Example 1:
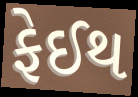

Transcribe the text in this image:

ફેઈથ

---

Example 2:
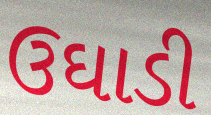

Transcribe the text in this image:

ઉઘાડી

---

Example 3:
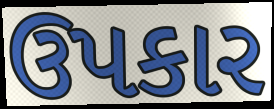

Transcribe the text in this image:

ઉપકાર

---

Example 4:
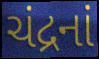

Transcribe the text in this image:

ચંદ્રનાં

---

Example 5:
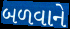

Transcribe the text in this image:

બળવાને